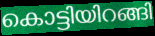
കൊട്ടിയിറങ്ങി